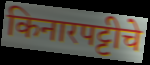
किनारपट्टीचे